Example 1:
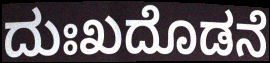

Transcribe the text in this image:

ದುಃಖದೊಡನೆ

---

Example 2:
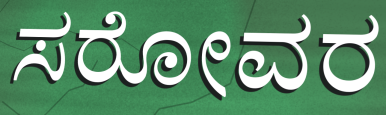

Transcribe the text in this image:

ಸರೋವರ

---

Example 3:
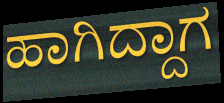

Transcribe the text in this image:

ಹಾಗಿದ್ದಾಗ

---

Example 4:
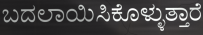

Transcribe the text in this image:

ಬದಲಾಯಿಸಿಕೊಳ್ಳುತ್ತಾರೆ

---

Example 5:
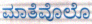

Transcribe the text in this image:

ಮಾತೆವೊಲೊ